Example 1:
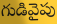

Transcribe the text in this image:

గుడివైపు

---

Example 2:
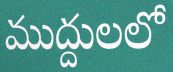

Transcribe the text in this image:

ముద్దులలో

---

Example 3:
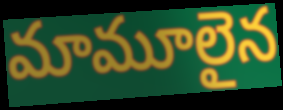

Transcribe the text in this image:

మామూలైన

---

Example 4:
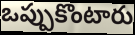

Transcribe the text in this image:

ఒప్పుకొంటారు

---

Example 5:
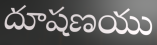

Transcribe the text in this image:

దూషణయు